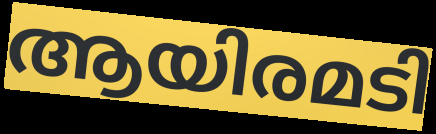
ആയിരമടി